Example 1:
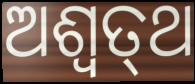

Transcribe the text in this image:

ଅଶ୍ଵତ୍‍ଥ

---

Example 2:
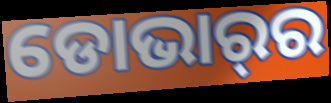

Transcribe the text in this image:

ଡୋଭାର୍‌ର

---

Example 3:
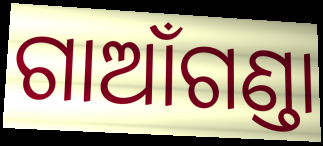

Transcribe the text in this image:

ଗାଆଁଗଣ୍ଡା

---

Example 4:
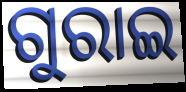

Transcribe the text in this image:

ଗୁରାଇ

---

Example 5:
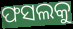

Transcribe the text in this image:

ଫସଲକୁ